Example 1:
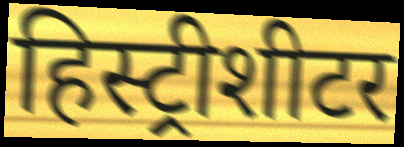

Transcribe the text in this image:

हिस्ट्रीशीटर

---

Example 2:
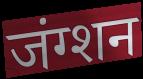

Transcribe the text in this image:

जंग्शन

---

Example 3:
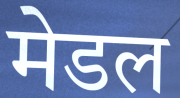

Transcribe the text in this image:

मेडल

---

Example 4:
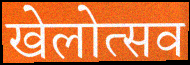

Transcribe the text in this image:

खेलोत्सव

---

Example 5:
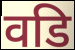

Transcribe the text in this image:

वडि